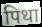
पिथा